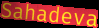
Sahadeva